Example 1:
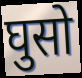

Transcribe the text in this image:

घुसो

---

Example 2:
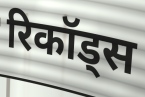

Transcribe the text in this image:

रिकॉड्स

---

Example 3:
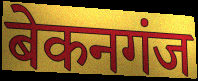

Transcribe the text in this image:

बेकनगंज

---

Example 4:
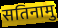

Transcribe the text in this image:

सतिनामु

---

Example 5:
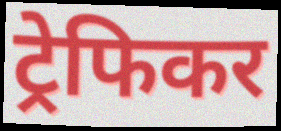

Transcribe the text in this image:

ट्रेफिकर